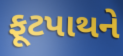
ફૂટપાથને